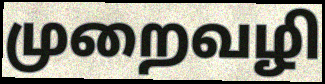
முறைவழி